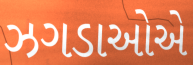
ઝગડાઓએ